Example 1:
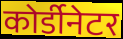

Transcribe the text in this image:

कोर्डीनेटर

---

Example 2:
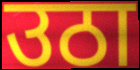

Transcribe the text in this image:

उठा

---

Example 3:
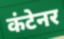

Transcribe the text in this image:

कंटेनर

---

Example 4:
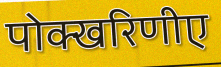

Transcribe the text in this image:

पोक्खरिणीए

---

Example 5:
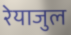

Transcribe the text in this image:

रेयाजुल